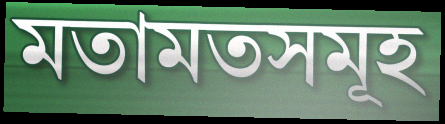
মতামতসমূহ